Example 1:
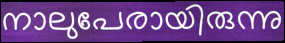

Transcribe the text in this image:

നാലുപേരായിരുന്നു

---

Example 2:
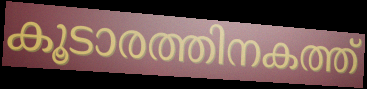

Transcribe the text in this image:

കൂടാരത്തിനകത്ത്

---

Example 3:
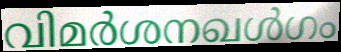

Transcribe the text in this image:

വിമർശനഖൾഗം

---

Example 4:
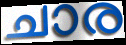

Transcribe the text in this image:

ചാര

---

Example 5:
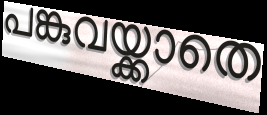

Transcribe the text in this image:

പങ്കുവയ്ക്കാതെ